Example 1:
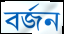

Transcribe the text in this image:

বৰ্জন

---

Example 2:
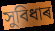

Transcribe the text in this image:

সুবিধাৰ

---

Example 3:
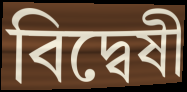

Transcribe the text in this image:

বিদ্বেষী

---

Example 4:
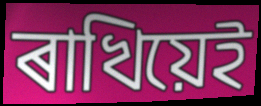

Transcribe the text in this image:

ৰাখিয়েই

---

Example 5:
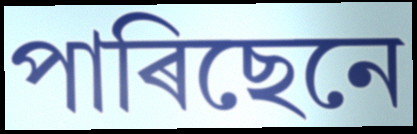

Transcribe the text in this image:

পাৰিছেনে